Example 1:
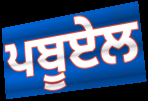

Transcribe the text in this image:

ਪਬੂਏਲ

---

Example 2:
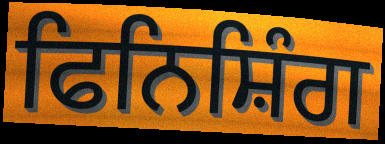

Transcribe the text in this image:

ਫਿਨਿਸ਼ਿੰਗ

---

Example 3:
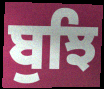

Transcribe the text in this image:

ਬੁਝਿ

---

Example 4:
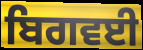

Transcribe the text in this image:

ਬਿਗਵਈ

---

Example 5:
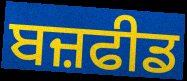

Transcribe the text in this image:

ਬਜ਼ਫੀਡ